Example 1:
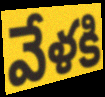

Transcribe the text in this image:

వేళకి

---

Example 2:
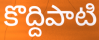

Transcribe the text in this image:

కొద్దిపాటి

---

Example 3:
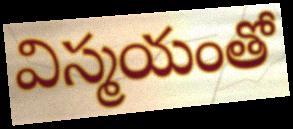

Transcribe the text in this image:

విస్మయంతో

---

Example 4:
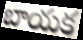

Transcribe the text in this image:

బాయక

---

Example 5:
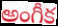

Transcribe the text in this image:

అంగీక